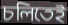
চলিতেই